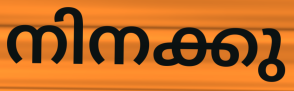
നിനക്കു